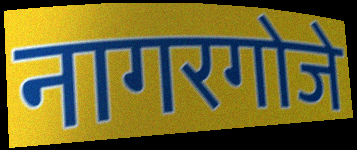
नागरगोजे